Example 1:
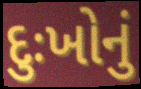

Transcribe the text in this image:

દુઃખોનું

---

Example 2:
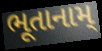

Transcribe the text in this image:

ભૂતાનામ્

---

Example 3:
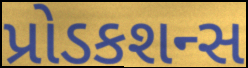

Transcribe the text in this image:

પ્રોડકશન્સ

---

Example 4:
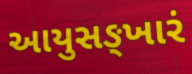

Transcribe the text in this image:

આયુસઙ્ખારં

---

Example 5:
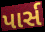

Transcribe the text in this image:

પાર્સ